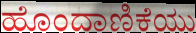
ಹೊಂದಾಣಿಕೆಯು